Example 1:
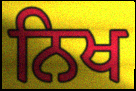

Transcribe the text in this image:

ਨਿਖ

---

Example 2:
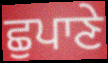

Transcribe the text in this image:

ਛੁਪਾਣੇ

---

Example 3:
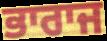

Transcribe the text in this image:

ਭਾਰਾਜ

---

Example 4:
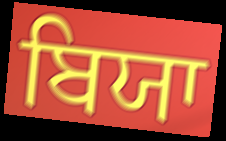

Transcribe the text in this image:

ਬਿਯਾ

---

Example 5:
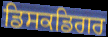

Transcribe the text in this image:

ਡਿਸਕਡਿਗਰ